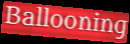
Ballooning